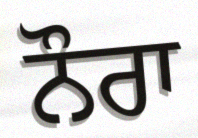
ਨੌਰਾ